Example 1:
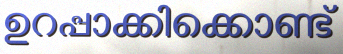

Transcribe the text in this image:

ഉറപ്പാക്കിക്കൊണ്ട്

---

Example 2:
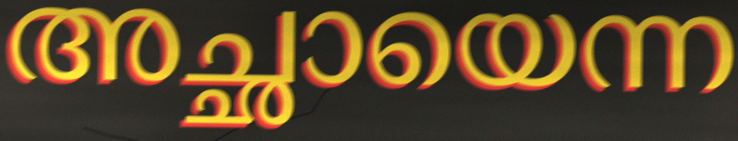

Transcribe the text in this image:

അച്ഛായെന്ന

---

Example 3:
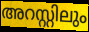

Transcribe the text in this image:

അറസ്റ്റിലും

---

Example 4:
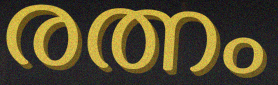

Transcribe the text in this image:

രത്നം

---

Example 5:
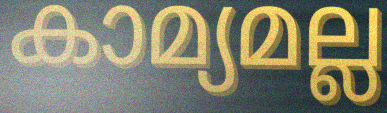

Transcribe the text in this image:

കാമ്യമല്ല